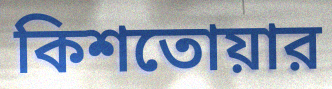
কিশতোয়ার